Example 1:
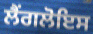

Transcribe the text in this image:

ਲੈਂਗਲੋਇਸ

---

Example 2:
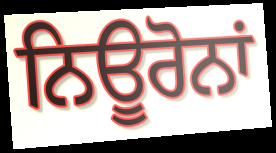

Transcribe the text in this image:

ਨਿਊਰੋਨਾਂ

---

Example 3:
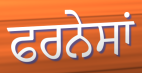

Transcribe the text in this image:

ਫਰਨੇਸਾਂ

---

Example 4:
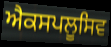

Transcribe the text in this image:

ਐਕਸਪਲੂਸਿਵ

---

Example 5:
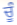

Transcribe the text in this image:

ਚੂੰ